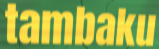
tambaku